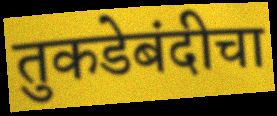
तुकडेबंदीचा